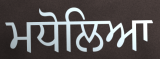
ਮਧੋਲਿਆ